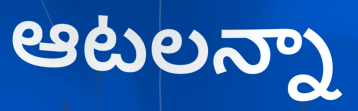
ఆటలన్నా